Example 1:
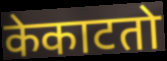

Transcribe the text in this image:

केकाटतो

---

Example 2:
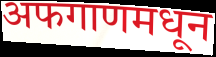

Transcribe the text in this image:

अफगाणमधून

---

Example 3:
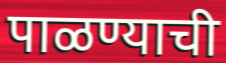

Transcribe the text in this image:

पाळण्याची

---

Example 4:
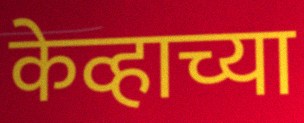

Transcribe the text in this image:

केव्हाच्या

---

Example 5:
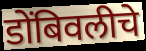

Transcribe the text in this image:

डोंबिवलीचे